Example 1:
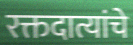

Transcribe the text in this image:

रक्तदात्यांचे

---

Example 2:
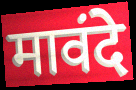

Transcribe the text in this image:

मावंदे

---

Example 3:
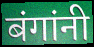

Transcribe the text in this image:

बंगांनी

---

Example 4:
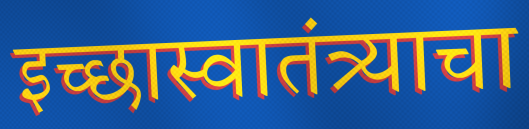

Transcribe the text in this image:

इच्छास्वातंत्र्याचा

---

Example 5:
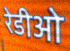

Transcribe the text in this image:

रेडीओ